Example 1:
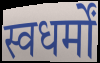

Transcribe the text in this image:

स्वधर्मों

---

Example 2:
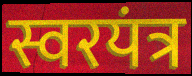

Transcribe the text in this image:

स्वरयंत्र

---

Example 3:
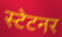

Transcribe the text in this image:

स्टेटनर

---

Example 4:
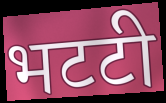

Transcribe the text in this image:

भटटी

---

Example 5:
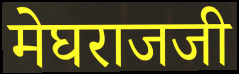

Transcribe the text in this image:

मेघराजजी